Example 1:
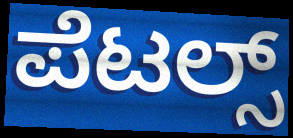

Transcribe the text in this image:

ಪೆಟಲ್ಸ್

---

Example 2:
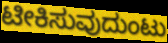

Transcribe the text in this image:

ಟೀಕಿಸುವುದುಂಟು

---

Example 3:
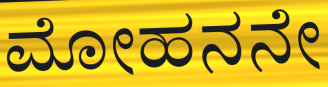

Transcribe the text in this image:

ಮೋಹನನೇ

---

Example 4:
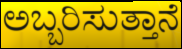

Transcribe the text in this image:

ಅಬ್ಬರಿಸುತ್ತಾನೆ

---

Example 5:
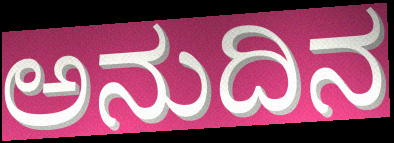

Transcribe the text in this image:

ಅನುದಿನ